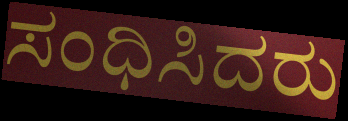
ಸಂಧಿಸಿದರು